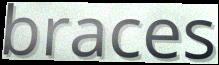
braces